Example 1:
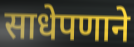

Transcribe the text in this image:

साधेपणाने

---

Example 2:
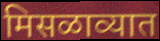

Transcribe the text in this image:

मिसळाव्यात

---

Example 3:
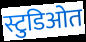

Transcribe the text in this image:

स्टुडिओत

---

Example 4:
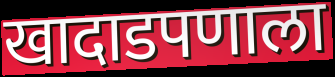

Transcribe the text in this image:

खादाडपणाला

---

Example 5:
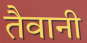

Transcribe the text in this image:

तैवानी